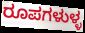
ರೂಪಗಳುಳ್ಳ